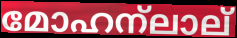
മോഹന്ലാല്